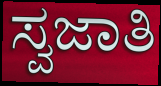
ಸ್ವಜಾತಿ